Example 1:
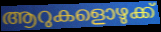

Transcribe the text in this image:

ആറുകളൊഴുക്ക്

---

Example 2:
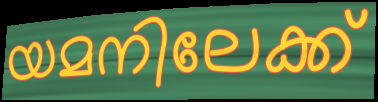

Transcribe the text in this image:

യമനിലേക്ക്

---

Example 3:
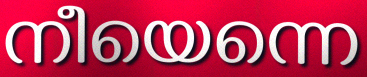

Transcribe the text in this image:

നീയെന്നെ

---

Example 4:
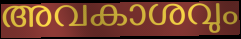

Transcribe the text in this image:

അവകാശവും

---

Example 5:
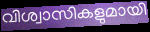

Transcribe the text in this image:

വിശ്വാസികളുമായി